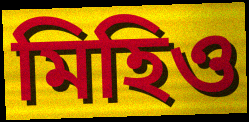
মিহিও